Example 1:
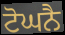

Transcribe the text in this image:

ਟੋਘਨੈ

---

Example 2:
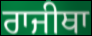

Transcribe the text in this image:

ਰਾਜੀਥਾ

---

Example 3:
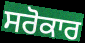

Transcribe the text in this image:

ਸਰੋਕਾਰ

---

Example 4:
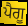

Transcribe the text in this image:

ਪੈਗੂ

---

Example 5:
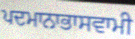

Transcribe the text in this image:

ਪਦਮਾਨਾਭਾਸਵਾਮੀ